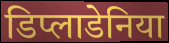
डिप्लाडेनिया